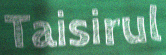
Taisirul